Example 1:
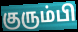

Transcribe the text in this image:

குரும்பி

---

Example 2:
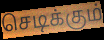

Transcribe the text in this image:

செடிக்கும்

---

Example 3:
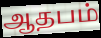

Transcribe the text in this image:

ஆதபம்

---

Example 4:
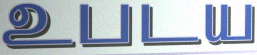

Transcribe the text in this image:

உபடய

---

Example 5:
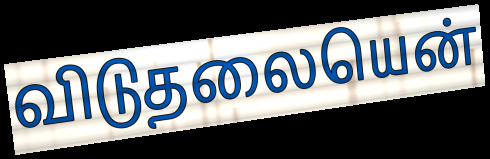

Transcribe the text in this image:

விடுதலையென்